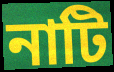
নাটি